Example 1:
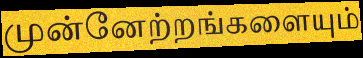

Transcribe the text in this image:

முன்னேற்றங்களையும்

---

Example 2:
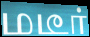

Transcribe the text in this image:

மடீர்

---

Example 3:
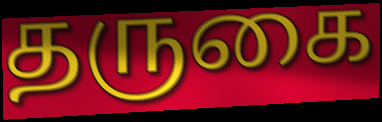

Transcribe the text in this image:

தருகை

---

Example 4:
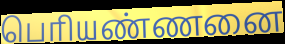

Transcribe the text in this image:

பெரியண்ணனை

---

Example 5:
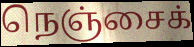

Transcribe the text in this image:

நெஞ்சைக்